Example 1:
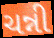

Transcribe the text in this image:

ચન્ની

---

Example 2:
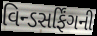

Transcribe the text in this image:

વિન્ડસર્ફિંગની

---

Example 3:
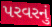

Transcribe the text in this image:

પરવરનું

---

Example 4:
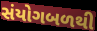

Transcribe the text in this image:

સંયોગબળથી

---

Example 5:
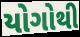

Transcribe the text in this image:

યોગોથી